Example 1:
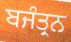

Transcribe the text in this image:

ਬਜੰਤ੍ਰਨ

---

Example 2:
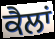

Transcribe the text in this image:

ਕੈਲਾਂ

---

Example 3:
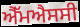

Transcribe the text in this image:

ਐੱਮਐਸਸੀ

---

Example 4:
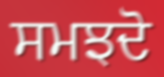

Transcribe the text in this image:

ਸਮਝਦੋ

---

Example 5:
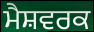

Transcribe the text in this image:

ਮੈਸ਼ਵਰਕ